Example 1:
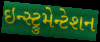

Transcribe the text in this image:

ઇન્સ્ટ્રુમેન્ટેશન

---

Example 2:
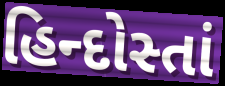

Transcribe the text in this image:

હિન્દોસ્તાં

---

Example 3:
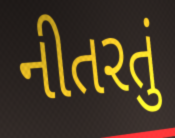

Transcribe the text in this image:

નીતરતું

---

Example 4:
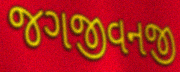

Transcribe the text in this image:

જગજીવનજી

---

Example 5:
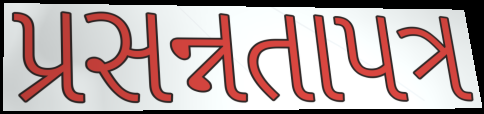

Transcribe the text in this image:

પ્રસન્નતાપત્ર